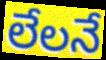
లేలనే